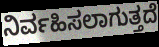
ನಿರ್ವಹಿಸಲಾಗುತ್ತದೆ